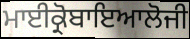
ਮਾਈਕ੍ਰੋਬਾਇਆਲੋਜੀ